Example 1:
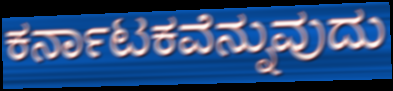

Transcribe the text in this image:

ಕರ್ನಾಟಕವೆನ್ನುವುದು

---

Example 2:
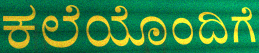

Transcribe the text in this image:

ಕಲೆಯೊಂದಿಗೆ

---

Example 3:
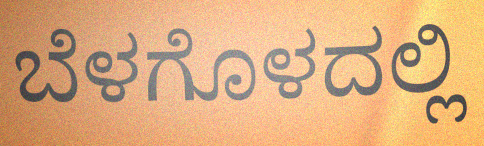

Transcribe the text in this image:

ಬೆಳಗೊಳದಲ್ಲಿ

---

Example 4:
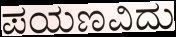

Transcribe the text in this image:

ಪಯಣವಿದು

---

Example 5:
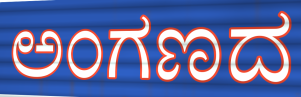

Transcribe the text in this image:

ಅಂಗಣದ